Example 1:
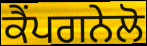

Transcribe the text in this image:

ਕੈਂਪਗਨੇਲੋ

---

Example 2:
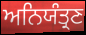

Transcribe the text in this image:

ਅਨਿਯੰਤ੍ਰਣ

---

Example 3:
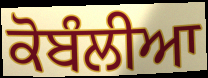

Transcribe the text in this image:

ਕੋਬੰਲੀਆ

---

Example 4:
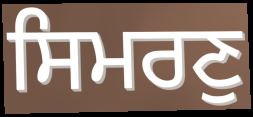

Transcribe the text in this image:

ਸਿਮਰਣੁ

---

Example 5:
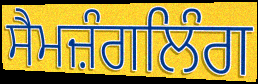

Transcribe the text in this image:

ਸੈਮਜ਼ੰਗਲਿੰਗ